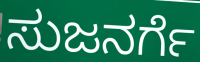
ಸುಜನರ್ಗೆ